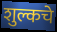
शुल्कचे